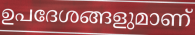
ഉപദേശങ്ങളുമാണ്